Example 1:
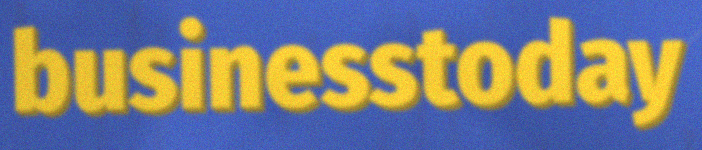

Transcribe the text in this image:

businesstoday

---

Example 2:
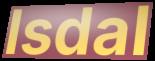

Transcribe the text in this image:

Isdal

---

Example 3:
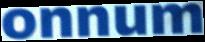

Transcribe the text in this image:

onnum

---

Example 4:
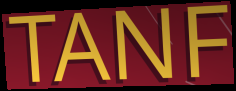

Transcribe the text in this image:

TANF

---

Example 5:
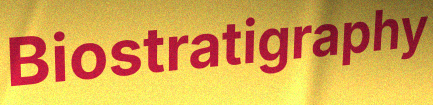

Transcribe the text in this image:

Biostratigraphy